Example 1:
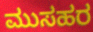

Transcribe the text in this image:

ಮುಸಹರ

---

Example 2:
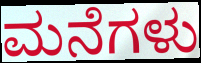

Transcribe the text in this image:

ಮನೆಗಳು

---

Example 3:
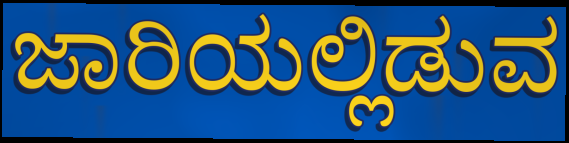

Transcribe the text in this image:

ಜಾರಿಯಲ್ಲಿಡುವ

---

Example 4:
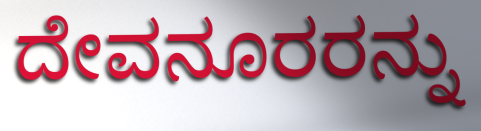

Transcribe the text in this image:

ದೇವನೂರರನ್ನು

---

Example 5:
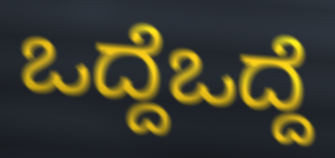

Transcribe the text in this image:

ಒದ್ದೆಒದ್ದೆ